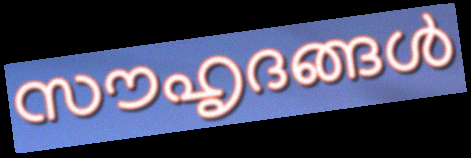
സൗഹൃദങ്ങൾ